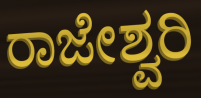
ರಾಜೇಶ್ವರಿ